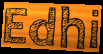
Edhi